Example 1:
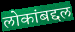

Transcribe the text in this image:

लोकांबद्दल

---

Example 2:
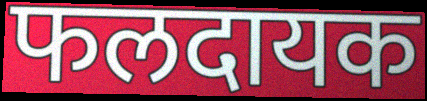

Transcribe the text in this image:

फलदायक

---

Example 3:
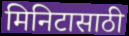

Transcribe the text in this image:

मिनिटासाठी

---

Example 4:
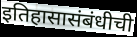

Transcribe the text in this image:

इतिहासासंबंधीची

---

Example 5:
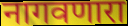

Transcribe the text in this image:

नागवणारा